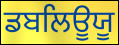
ਡਬਲਿਊਯੂ